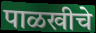
पाळखीचे